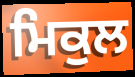
ਮਿਕੁਲ